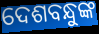
ଦେଶବନ୍ଧୁଙ୍କ